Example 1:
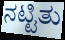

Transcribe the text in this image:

ನಟ್ಟಿತು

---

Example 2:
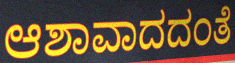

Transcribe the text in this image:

ಆಶಾವಾದದಂತೆ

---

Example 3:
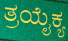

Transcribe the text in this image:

ತ್ರಯೈಕ್ಯ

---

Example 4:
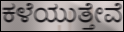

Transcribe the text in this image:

ಕಳೆಯುತ್ತೇವೆ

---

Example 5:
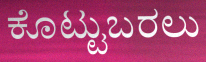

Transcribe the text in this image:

ಕೊಟ್ಟುಬರಲು